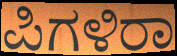
ಪಿಗಳಿರಾ